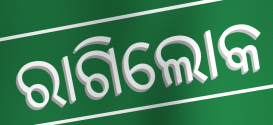
ରାଗିଲୋକ